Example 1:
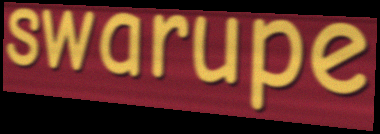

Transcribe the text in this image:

swarupe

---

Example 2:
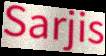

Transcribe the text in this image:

Sarjis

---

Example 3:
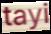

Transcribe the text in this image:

tayi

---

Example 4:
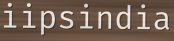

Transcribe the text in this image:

iipsindia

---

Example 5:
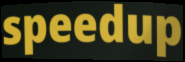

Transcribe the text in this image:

speedup